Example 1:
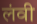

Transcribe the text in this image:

लंवी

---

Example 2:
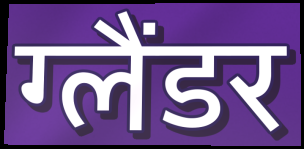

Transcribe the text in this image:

ग्लैंडर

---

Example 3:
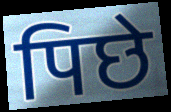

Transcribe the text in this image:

पिछे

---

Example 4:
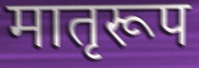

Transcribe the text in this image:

मातृरूप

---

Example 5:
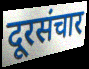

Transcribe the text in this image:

दूरसंचार